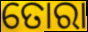
ତୋରା